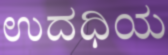
ಉದಧಿಯ